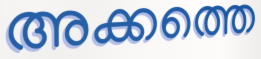
അക്കത്തെ